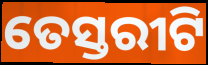
ତେସ୍ତରୀଟି